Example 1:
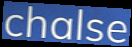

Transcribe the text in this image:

chalse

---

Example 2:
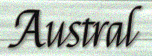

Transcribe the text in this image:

Austral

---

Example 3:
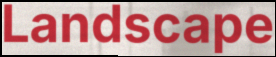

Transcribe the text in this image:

Landscape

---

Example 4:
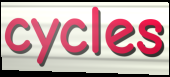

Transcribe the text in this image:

cycles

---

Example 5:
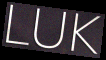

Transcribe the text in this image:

LUK